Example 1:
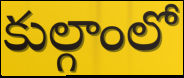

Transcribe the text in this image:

కుల్గాంలో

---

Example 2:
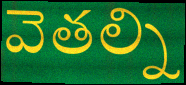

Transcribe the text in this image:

వెతల్ని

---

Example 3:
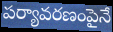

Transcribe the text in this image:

పర్యావరణంపైనే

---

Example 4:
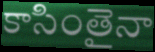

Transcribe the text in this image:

కాసింతైనా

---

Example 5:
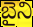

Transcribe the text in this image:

బైని